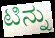
ಟಿನ್ನು